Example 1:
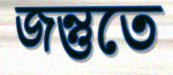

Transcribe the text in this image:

জন্তুতে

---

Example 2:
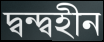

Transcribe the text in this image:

দ্বন্দ্বহীন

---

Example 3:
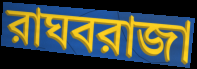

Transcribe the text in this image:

রাঘবরাজা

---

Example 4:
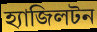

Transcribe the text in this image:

হ্যাজিলটন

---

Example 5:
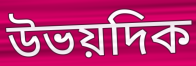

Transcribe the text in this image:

উভয়দিক